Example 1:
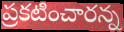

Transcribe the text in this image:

ప్రకటించారన్న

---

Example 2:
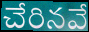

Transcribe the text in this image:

చేరినవే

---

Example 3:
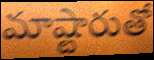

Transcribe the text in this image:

మాష్టారుతో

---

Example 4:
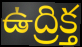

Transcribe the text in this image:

ఉద్రిక్త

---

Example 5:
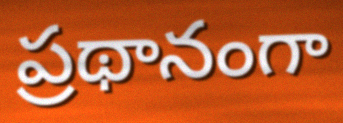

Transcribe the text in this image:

ప్రథానంగా